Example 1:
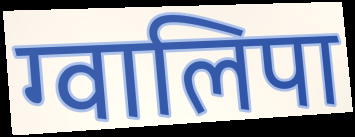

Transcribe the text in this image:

ग्वालिपा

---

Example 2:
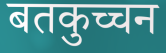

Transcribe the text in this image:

बतकुच्चन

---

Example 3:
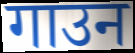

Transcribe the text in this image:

गाउन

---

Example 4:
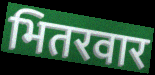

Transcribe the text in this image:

भितरवार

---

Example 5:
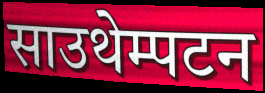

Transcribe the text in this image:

साउथेम्पटन